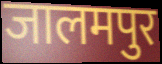
जालमपुर